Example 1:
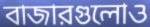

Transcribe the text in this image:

বাজারগুলোও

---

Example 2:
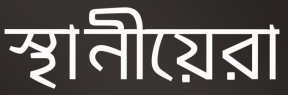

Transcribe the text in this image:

স্থানীয়েরা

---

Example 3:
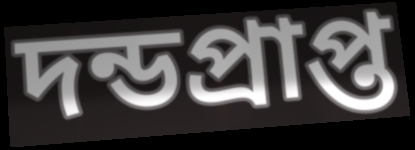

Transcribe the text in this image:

দন্ডপ্রাপ্ত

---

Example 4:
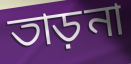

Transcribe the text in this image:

তাড়না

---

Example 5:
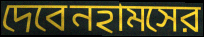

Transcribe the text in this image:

দেবেনহামসের